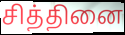
சித்தினை